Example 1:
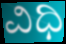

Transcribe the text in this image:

ವಿಧಿ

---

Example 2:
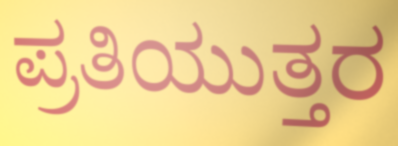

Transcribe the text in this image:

ಪ್ರತಿಯುತ್ತರ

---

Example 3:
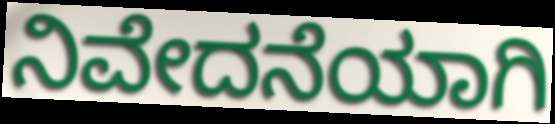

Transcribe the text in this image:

ನಿವೇದನೆಯಾಗಿ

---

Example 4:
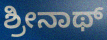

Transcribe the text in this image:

ಶ್ರೀನಾಥ್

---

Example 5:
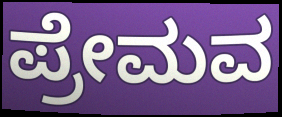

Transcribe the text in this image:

ಪ್ರೇಮವ